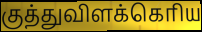
குத்துவிளக்கெரிய